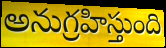
అనుగ్రహిస్తుంది